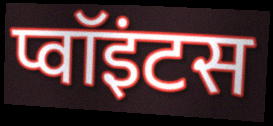
प्वॉइंटस